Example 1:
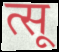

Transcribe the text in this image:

त्सू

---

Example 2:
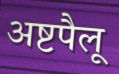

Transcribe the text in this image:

अष्टपैलू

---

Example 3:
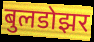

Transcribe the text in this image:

बुलडोझर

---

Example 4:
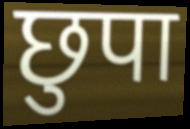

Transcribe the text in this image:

छुपा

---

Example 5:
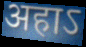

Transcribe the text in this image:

अहाऽ